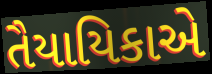
તૈયાયિકાએ